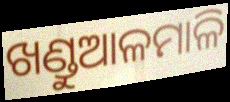
ଖଣ୍ଡୁଆଳମାଳି